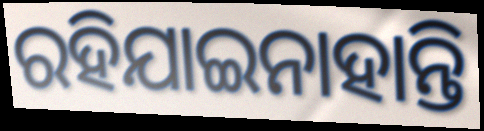
ରହିଯାଇନାହାନ୍ତି